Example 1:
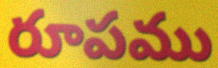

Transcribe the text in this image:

రూపము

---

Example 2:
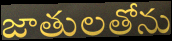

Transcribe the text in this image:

జాతులతోను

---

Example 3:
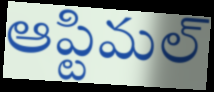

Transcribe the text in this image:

ఆప్టిమల్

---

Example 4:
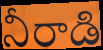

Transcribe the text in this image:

నీరాడి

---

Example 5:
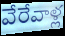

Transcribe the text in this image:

వేరేవాళ్ల